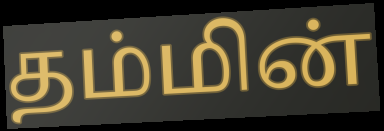
தம்மின்